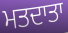
ਮਤਦਾਤਾ